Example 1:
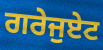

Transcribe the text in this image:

ਗਰੇਜੁਏਟ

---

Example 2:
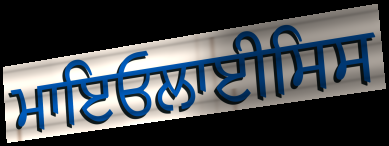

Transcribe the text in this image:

ਮਾਇਓਲਾਈਸਿਸ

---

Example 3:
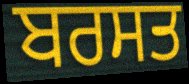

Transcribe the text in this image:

ਬਰਸਤ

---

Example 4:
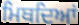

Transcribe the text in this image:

ਮਿਥਦਿਆਂ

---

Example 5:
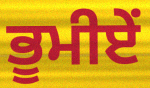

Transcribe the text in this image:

ਭੂਮੀਏਂ